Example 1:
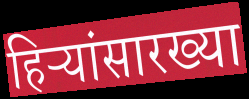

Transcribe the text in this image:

हिऱ्यांसारख्या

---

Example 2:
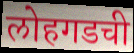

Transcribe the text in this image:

लोहगडची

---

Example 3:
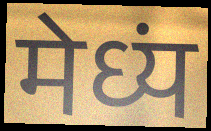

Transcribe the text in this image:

मेध्यं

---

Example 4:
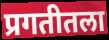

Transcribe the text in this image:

प्रगतीतला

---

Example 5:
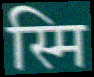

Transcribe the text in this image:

स्मि